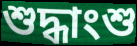
শুদ্ধাংশু